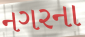
નગરના